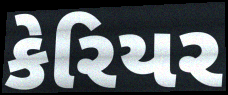
કેરિયર